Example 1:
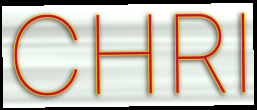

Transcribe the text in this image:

CHRI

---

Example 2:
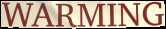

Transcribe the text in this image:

WARMING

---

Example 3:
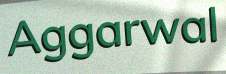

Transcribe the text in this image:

Aggarwal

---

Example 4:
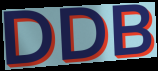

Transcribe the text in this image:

DDB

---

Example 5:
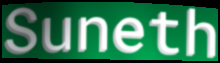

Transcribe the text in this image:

Suneth